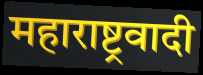
महाराष्ट्रवादी